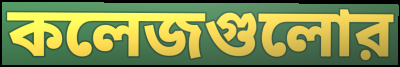
কলেজগুলোর